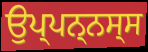
ਉਪ੍ਪਨ੍ਨਸ੍ਸ